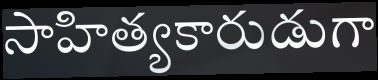
సాహిత్యకారుడుగా